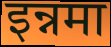
इन्नमा